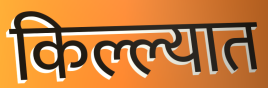
किल्ल्यात